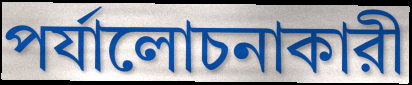
পর্যালোচনাকারী